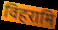
विहरामि